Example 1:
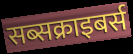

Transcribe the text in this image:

सब्सक्राइबर्स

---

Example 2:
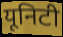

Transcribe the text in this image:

यूनिटी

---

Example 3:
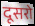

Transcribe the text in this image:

दूसरो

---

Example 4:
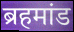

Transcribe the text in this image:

ब्रहमांड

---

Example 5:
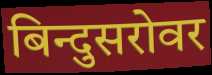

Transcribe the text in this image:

बिन्दुसरोवर